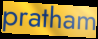
pratham